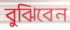
বুঝিবেন